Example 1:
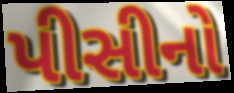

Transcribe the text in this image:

પીસીનો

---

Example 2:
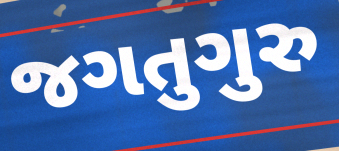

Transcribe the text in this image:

જગતુગુરુ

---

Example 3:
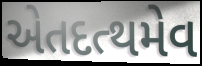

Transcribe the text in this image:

એતદત્થમેવ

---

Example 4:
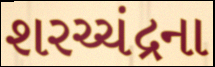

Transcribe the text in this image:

શરચ્ચંદ્રના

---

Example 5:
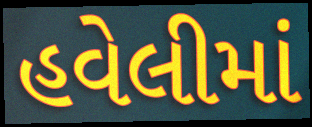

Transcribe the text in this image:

હવેલીમાં